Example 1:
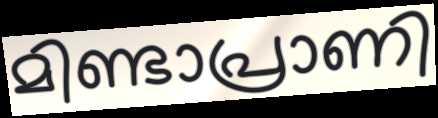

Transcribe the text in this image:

മിണ്ടാപ്രാണി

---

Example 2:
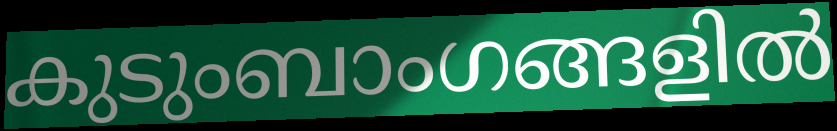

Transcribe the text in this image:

കുടുംബാംഗങ്ങളിൽ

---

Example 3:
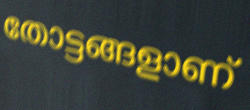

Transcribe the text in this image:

തോട്ടങ്ങളാണ്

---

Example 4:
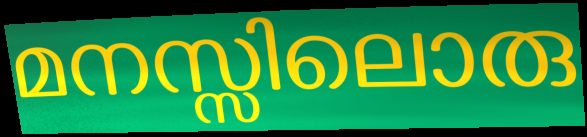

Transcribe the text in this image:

മനസ്സിലൊരു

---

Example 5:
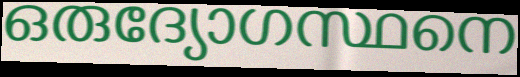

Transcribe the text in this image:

ഒരുദ്യോഗസ്ഥനെ